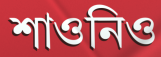
শাওনিও